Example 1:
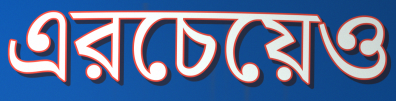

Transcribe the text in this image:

এরচেয়েও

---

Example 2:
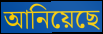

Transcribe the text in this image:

আনিয়েছে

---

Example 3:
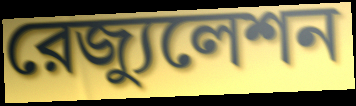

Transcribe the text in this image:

রেজ্যুলেশন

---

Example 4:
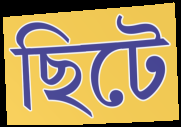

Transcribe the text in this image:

ছিটে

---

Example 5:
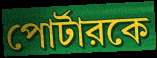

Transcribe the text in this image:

পোর্টারকে